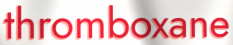
thromboxane